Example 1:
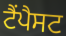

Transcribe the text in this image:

ਟੈਂਪੈਸਟ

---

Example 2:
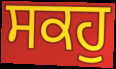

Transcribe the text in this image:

ਸਕਹੁ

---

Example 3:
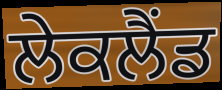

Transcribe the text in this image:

ਲੇਕਲੈਂਡ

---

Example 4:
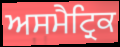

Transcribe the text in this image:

ਅਸਮੈਟ੍ਰਿਕ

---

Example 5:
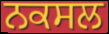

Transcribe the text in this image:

ਨਕਸਲ